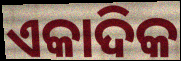
ଏକାଦିକ